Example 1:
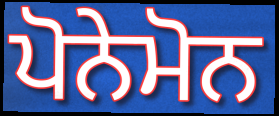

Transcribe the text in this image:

ਪੋਨੇਮੋਨ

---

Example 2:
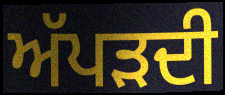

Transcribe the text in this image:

ਅੱਪੜਦੀ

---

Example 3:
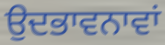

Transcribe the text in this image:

ਉਦਭਾਵਨਾਵਾਂ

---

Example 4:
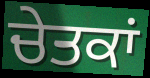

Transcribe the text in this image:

ਚੇਤਕਾਂ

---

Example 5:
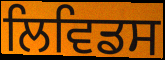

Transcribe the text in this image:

ਲਿਵਿਡਸ